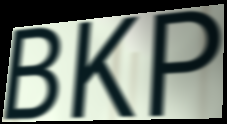
BKP